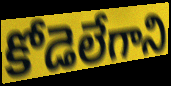
కోడెలేగాని